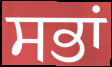
ਸਭਾਂ